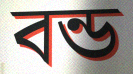
বন্ড